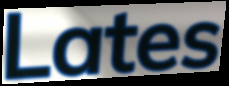
Lates